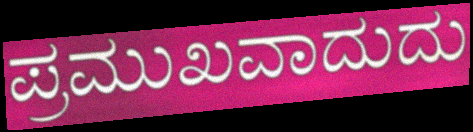
ಪ್ರಮುಖವಾದುದು